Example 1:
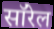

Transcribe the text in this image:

सॉरेल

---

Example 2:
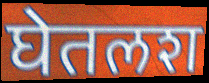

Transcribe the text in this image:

घेतलश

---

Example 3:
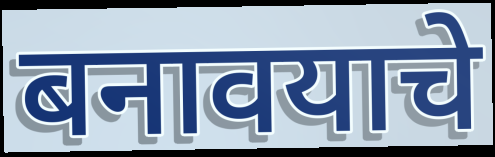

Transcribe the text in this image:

बनावयाचे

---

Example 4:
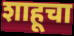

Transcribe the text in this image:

शाहूचा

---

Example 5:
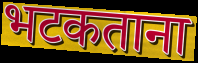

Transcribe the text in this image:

भटकताना